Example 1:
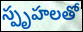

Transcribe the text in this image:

స్పృహలతో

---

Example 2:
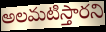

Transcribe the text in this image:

అలమటిస్తారని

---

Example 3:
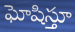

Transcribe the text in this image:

ఘోషిస్తూ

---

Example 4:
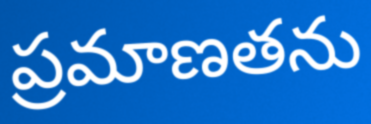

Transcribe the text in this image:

ప్రమాణతను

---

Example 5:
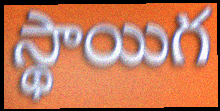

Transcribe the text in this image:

స్థాయిగ